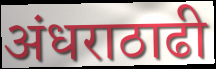
अंधराठाढी